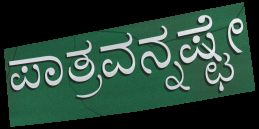
ಪಾತ್ರವನ್ನಷ್ಟೇ